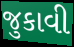
જુકાવી